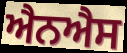
ਐਨਐਸ